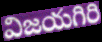
విజయగిరి